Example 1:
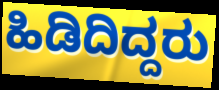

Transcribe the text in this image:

ಹಿಡಿದಿದ್ದರು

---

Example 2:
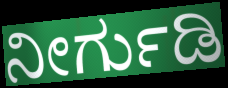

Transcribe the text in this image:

ನೀರ್ಗುಡಿ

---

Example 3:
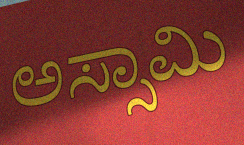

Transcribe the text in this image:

ಅಸ್ಸಾಮಿ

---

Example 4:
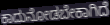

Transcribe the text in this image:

ಕಾದುನೋಡಬೇಕಾಗಿದೆ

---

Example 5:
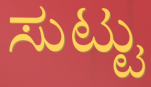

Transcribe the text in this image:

ಸುಟ್ಟು